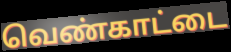
வெண்காட்டை